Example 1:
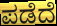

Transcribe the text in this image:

ಪಡೆದೆ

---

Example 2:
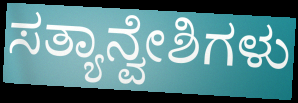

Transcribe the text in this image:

ಸತ್ಯಾನ್ವೇಶಿಗಳು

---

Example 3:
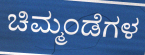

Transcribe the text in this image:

ಚಿಮ್ಮಂಡೆಗಳ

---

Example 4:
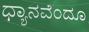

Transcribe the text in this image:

ಧ್ಯಾನವೆಂದೂ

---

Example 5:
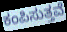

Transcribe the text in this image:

ಕಂಪಿಸುತ್ತವೆ